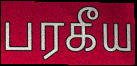
பரகீய